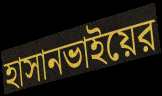
হাসানভাইয়ের